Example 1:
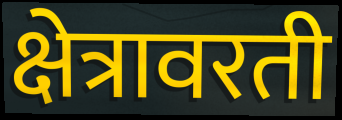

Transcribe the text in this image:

क्षेत्रावरती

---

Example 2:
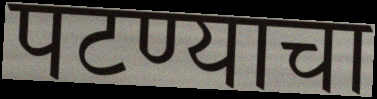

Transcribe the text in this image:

पटण्याचा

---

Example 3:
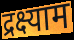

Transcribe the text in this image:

द्रक्ष्याम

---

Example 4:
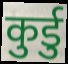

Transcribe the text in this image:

कुर्डु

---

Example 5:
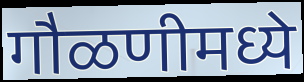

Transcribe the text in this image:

गौळणीमध्ये